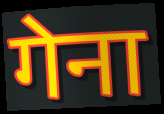
गेना